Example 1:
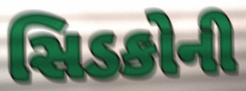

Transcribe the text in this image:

સિડકોની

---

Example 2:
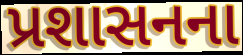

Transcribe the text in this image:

પ્રશાસનના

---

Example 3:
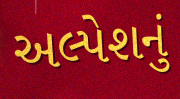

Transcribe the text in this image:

અલ્પેશનું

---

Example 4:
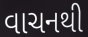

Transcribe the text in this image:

વાચનથી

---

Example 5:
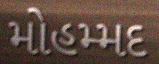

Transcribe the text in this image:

મોહમ્મદ